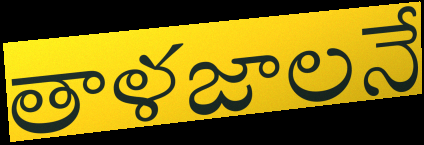
తాళజాలనే